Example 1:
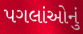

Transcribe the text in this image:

પગલાંઓનું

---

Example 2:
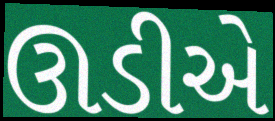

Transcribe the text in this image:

ઊડીએ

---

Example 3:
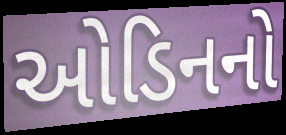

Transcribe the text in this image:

ઓડિનનો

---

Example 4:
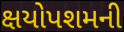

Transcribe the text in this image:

ક્ષયોપશમની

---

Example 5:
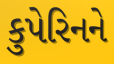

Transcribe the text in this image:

કુપેરિનને